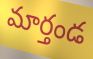
మార్తండ